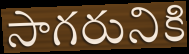
సాగరునికి